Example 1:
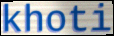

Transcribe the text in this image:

khoti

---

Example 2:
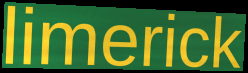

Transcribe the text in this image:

limerick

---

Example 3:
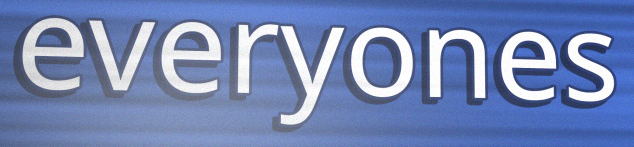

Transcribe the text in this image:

everyones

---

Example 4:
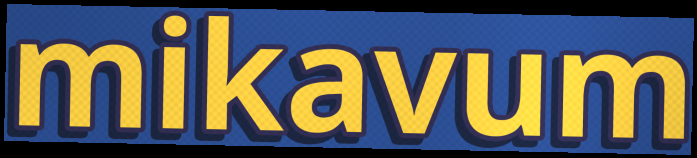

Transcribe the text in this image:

mikavum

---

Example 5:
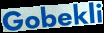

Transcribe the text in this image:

Gobekli